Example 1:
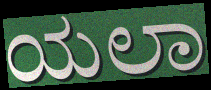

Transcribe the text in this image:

ಯಲಾ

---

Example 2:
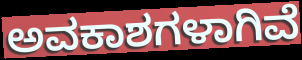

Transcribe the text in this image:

ಅವಕಾಶಗಳಾಗಿವೆ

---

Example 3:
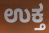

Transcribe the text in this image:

ಉಕ್ತ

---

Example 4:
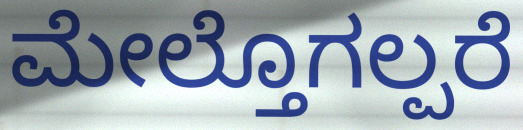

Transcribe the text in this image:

ಮೇಲ್ತೊಗಲ್ಪರೆ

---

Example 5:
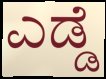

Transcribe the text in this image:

ಎಡ್ಡೆ